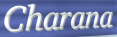
Charana